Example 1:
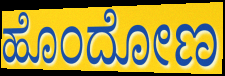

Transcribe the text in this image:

ಹೊಂದೋಣ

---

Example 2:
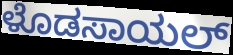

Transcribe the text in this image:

ಳೊಡಸಾಯಲ್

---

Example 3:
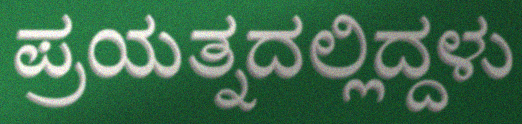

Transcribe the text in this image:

ಪ್ರಯತ್ನದಲ್ಲಿದ್ದಳು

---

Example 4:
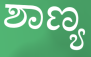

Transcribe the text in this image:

ಶಾಣ್ಯ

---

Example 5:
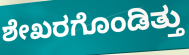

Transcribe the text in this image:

ಶೇಖರಗೊಂಡಿತ್ತು